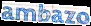
ambazo